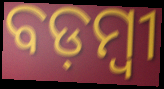
ବଡ଼ମ୍ବୀ